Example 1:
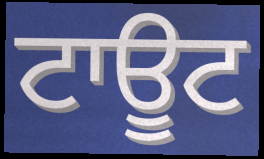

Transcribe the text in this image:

ਟਾਊਟ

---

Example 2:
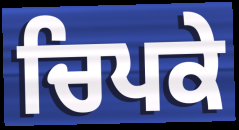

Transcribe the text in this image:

ਚਿਪਕੇ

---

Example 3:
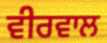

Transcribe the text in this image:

ਵੀਰਵਾਲ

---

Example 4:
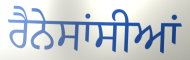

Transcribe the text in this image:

ਰੈਨੇਸਾਂਸੀਆਂ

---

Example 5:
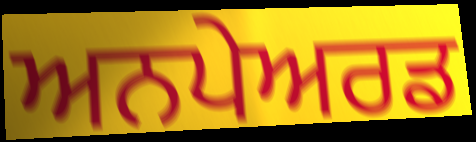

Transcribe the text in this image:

ਅਨਪੇਅਰਡ